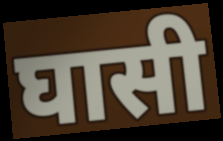
घासी